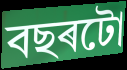
বছৰটো